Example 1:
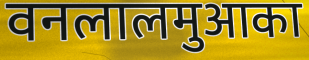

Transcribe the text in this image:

वनलालमुआका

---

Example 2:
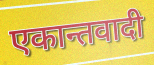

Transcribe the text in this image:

एकान्तवादी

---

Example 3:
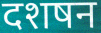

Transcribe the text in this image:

दशषन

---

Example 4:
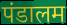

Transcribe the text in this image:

पंडालम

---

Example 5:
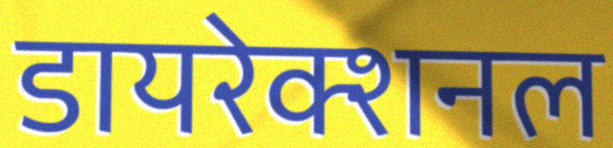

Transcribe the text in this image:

डायरेक्शनल